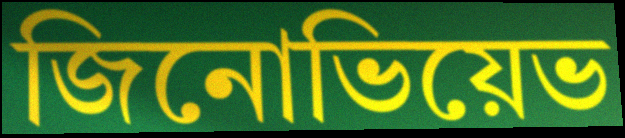
জিনোভিয়েভ